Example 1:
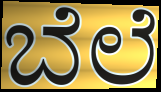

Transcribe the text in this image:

ಬೆಲೆ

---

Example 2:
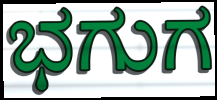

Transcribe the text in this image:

ಭಗುಗ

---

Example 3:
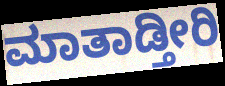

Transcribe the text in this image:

ಮಾತಾಡ್ತೀರಿ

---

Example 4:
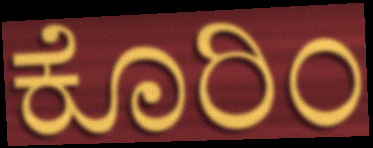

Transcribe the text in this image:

ಕೊರಿಂ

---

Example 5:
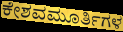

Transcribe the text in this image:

ಕೇಶವಮೂರ್ತಿಗಳ